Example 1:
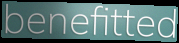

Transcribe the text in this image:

benefitted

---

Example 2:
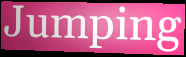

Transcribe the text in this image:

Jumping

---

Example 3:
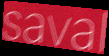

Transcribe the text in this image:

saval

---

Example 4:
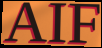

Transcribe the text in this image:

AIF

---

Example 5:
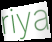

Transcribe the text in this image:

riya